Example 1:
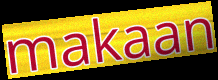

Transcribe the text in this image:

makaan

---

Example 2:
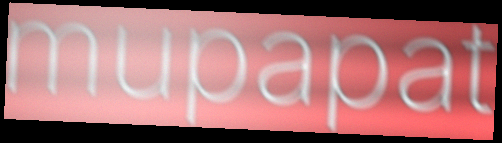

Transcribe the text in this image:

mupapat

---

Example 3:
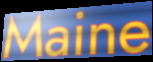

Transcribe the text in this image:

Maine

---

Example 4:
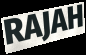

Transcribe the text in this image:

RAJAH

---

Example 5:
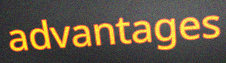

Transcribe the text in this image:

advantages